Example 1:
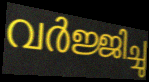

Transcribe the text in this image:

വർജ്ജിച്ചു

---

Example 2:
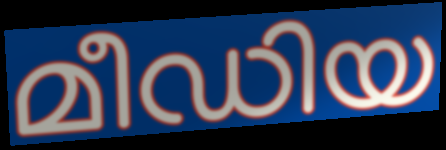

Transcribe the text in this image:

മീഡിയ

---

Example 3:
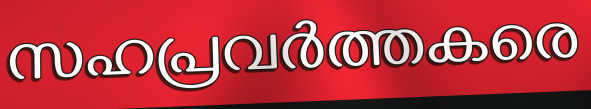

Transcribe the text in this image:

സഹപ്രവർത്തകരെ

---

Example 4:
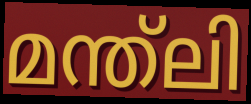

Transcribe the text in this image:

മന്ത്ലി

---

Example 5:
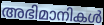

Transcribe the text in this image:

അഭിമാനികൾ